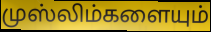
முஸ்லிம்களையும்